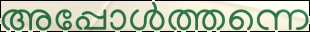
അപ്പോൾത്തന്നെ